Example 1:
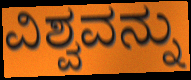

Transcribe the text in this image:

ವಿಶ್ವವನ್ನು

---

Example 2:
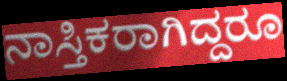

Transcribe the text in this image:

ನಾಸ್ತಿಕರಾಗಿದ್ದರೂ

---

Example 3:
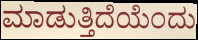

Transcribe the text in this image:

ಮಾಡುತ್ತಿದೆಯೆಂದು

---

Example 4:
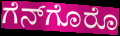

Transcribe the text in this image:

ಗೆನ್‌ಗೊರೊ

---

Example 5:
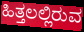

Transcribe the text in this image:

ಹಿತ್ತಲಲ್ಲಿರುವ